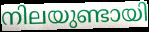
നിലയുണ്ടായി